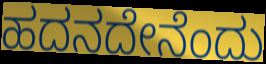
ಹದನದೇನೆಂದು